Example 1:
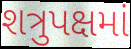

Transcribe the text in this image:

શત્રુપક્ષમાં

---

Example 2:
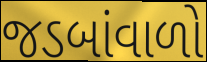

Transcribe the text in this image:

જડબાંવાળો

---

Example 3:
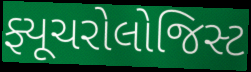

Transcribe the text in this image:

ફ્યૂચરોલોજિસ્ટ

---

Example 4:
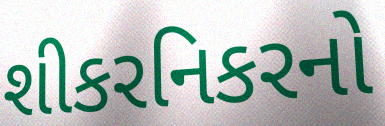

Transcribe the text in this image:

શીકરનિકરનો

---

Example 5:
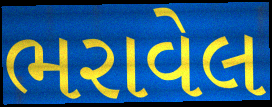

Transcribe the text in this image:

ભરાવેલ